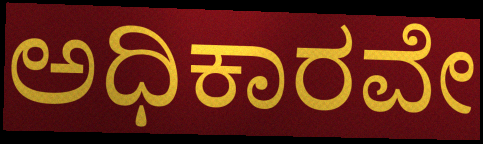
ಅಧಿಕಾರವೇ